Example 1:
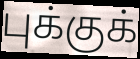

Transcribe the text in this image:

புக்குக்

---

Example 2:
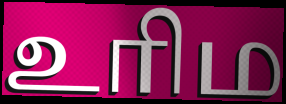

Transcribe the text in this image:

உரிம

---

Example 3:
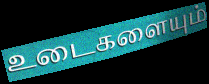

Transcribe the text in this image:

உடைகளையும்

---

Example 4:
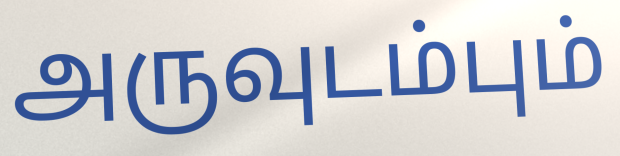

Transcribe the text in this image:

அருவுடம்பும்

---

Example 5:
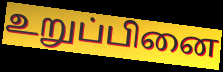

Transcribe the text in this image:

உறுப்பினை